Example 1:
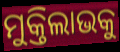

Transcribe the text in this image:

ମୁକ୍ତିଲାଭକୁ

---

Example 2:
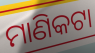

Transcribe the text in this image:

ମାଣିକଟା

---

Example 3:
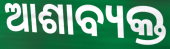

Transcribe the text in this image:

ଆଶାବ୍ୟକ୍ତ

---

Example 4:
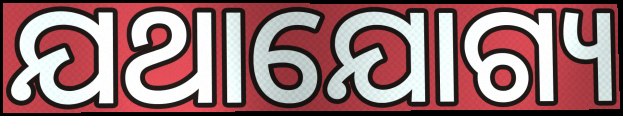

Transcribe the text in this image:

ଯଥାଯୋଗ୍ୟ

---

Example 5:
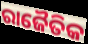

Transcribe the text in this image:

ରାଜୈତିକ